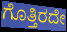
ಗೊತ್ತಿರದೇ